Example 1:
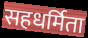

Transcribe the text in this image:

सहधर्मिता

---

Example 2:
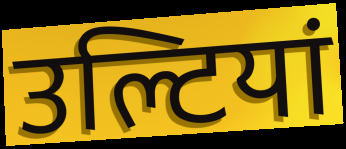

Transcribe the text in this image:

उल्टियां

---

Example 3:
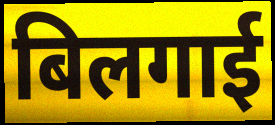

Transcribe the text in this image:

बिलगाई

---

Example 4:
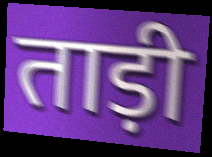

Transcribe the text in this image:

ताड़ी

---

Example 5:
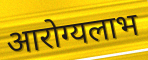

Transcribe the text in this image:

आरोग्यलाभ